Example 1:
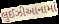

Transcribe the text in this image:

લુઈઝીઆનામાં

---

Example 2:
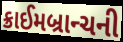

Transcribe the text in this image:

ક્રાઈમબ્રાન્ચની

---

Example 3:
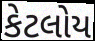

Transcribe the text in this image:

કેટલોય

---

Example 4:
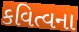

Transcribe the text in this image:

કવિત્વના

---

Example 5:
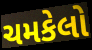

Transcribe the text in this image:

ચમકેલો